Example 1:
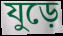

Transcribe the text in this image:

যুড়ে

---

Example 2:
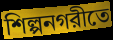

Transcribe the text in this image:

শিল্পনগরীতে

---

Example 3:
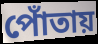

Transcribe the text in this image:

পোঁতায়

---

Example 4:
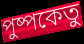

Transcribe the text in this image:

পুষ্পকেতু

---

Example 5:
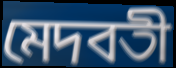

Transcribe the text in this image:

মেদবতী